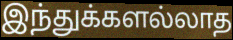
இந்துக்களல்லாத